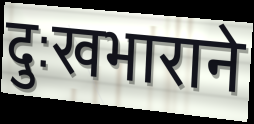
दुःखभाराने